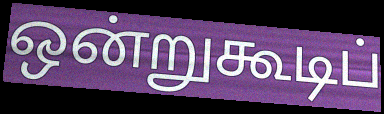
ஒன்றுகூடிப்